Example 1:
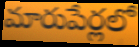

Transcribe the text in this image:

మారుపేర్లలో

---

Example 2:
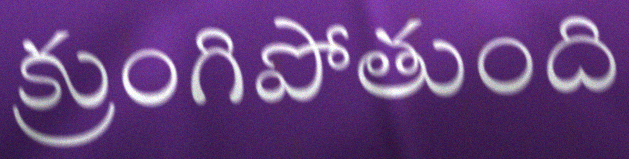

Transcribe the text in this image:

క్రుంగిపోతుంది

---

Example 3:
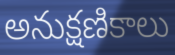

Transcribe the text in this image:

అనుక్షణికాలు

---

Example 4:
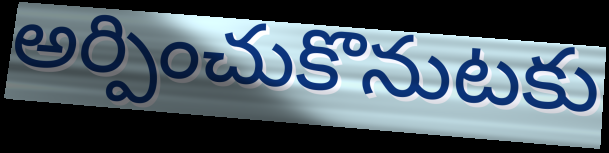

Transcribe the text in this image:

అర్పించుకొనుటకు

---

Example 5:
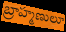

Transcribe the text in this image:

బ్రాహ్మణులూ